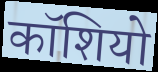
कॉशियो